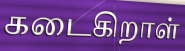
கடைகிறாள்